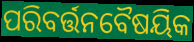
ପରିବର୍ତ୍ତନବୈଷୟିକ